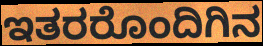
ಇತರರೊಂದಿಗಿನ